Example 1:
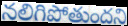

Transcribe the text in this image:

నలిగిపోతుందని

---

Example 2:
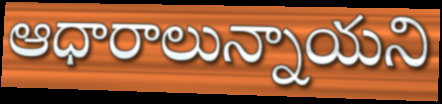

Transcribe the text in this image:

ఆధారాలున్నాయని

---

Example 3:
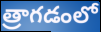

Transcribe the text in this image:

త్రాగడంలో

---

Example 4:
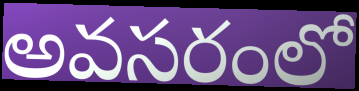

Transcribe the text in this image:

అవసరంలో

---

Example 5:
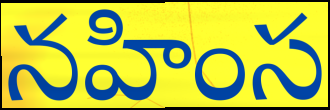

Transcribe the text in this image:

నహింస